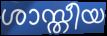
ശാസ്തീയ